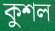
কুশল